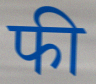
फी